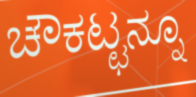
ಚೌಕಟ್ಟನ್ನೂ